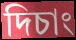
দিচাং